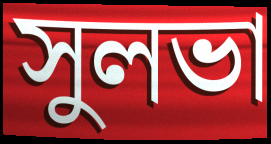
সুলভা